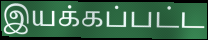
இயக்கப்பட்ட